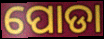
ପୋଡା